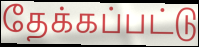
தேக்கப்பட்டு